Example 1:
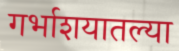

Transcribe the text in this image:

गर्भाशयातल्या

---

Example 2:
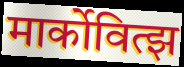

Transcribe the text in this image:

मार्कोवित्झ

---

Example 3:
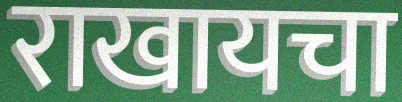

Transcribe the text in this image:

राखायचा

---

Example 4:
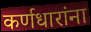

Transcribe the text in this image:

कर्णधारांना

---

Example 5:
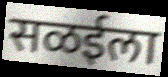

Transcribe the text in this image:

सळईला